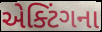
એક્ટિંગના